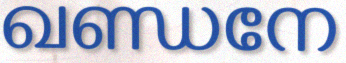
ഖണ്ഡനേ